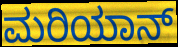
ಮರಿಯಾನ್